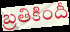
బ్రతికిందీ